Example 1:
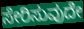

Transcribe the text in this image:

ಸೇರಿಸುವುದೇ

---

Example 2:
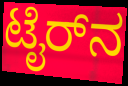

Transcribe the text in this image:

ಟೈರ್‌ನ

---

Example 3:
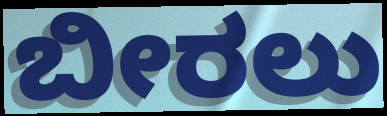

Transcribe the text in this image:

ಬೀರಲು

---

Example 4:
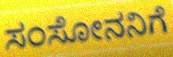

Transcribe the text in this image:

ಸಂಸೋನನಿಗೆ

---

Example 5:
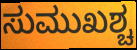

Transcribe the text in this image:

ಸುಮುಖಶ್ಚ